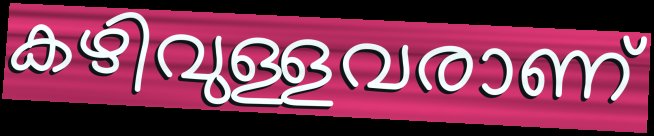
കഴിവുള്ളവരാണ്